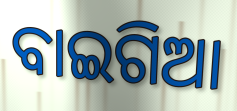
ବାଇଗିଆ